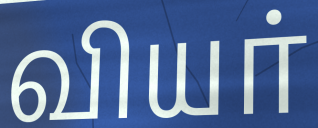
வியர்